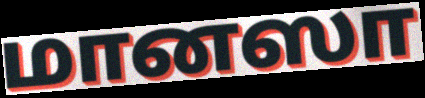
மானஸா